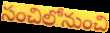
సంచిలోనుంచి